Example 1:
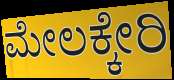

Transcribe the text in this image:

ಮೇಲಕ್ಕೇರಿ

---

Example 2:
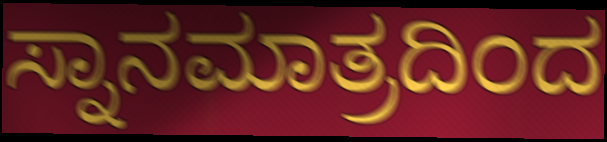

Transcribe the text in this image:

ಸ್ನಾನಮಾತ್ರದಿಂದ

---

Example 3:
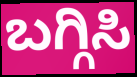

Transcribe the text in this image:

ಬಗ್ಗಿಸಿ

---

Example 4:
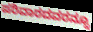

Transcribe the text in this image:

ಪರಿವಾರದವರನ್ನೂ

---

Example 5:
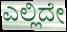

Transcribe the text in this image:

ಎಲ್ಲಿದೇ